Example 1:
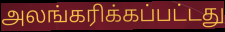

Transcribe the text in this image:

அலங்கரிக்கப்பட்டது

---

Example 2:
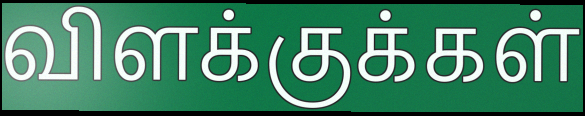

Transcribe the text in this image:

விளக்குக்கள்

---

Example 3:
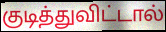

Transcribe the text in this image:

குடித்துவிட்டால்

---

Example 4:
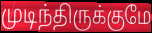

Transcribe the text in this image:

முடிந்திருக்குமே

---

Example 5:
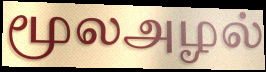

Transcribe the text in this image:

மூலஅழல்